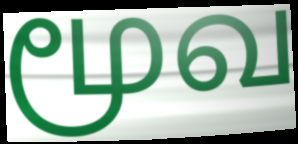
மூவ